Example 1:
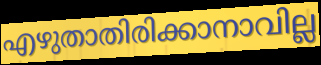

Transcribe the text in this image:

എഴുതാതിരിക്കാനാവില്ല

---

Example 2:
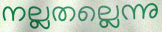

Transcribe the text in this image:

നല്ലതല്ലെന്നു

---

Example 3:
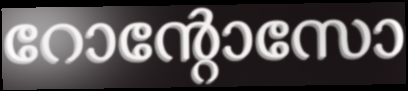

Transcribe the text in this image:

റോന്റോസോ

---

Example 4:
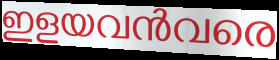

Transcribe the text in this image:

ഇളയവൻവരെ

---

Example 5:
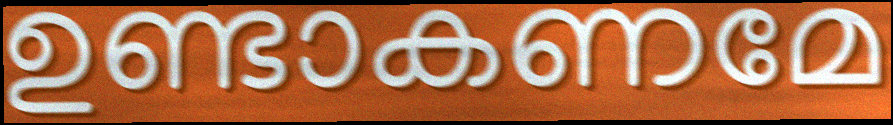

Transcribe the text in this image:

ഉണ്ടാകണമേ